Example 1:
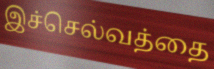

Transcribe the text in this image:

இச்செல்வத்தை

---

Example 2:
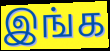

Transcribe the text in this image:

இங்க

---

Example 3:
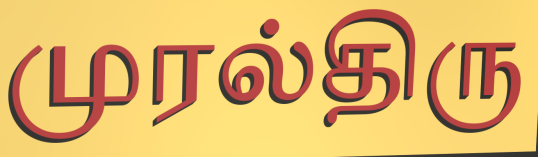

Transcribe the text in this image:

முரல்திரு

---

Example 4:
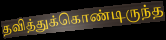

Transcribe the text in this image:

தவித்துக்கொண்டிருந்த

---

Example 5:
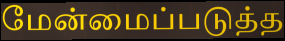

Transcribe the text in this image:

மேன்மைப்படுத்த